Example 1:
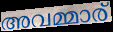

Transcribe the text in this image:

അവമ്മാര്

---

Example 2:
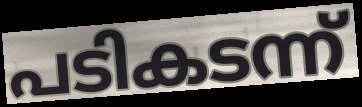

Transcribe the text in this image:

പടികടന്ന്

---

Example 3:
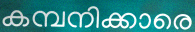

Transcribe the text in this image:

കമ്പനിക്കാരെ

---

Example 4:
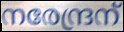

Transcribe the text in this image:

നരേന്ദ്രന്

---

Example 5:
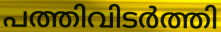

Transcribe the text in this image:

പത്തിവിടർത്തി